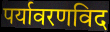
पर्यावरणविद